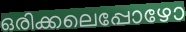
ഒരിക്കലെപ്പോഴോ